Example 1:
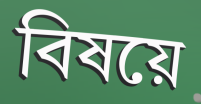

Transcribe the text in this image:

বিষয়ে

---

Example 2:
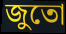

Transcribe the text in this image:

জুতো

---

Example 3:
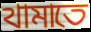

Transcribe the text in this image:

থামাতে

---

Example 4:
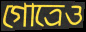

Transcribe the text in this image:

গোত্রেও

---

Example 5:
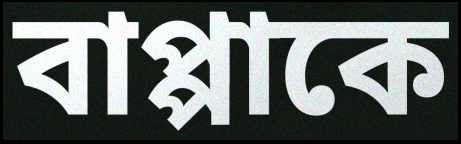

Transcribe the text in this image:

বাপ্পাকে